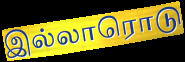
இல்லாரொடு